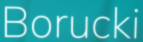
Borucki